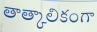
తాత్కాలికంగా